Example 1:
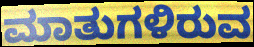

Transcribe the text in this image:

ಮಾತುಗಳಿರುವ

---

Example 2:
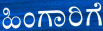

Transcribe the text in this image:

ಹಿಂಗಾರಿಗೆ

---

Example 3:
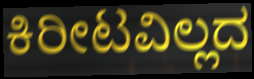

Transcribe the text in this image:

ಕಿರೀಟವಿಲ್ಲದ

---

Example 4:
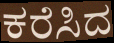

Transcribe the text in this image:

ಕರೆಸಿದ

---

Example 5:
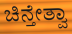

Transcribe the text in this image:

ಚಿನ್ತೇತ್ವಾ